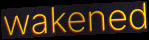
wakened